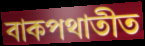
বাকপথাতীত